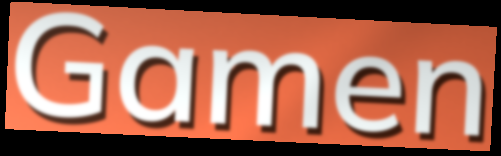
Gamen